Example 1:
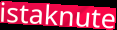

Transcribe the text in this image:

istaknute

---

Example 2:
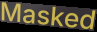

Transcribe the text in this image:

Masked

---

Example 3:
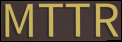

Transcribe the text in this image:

MTTR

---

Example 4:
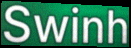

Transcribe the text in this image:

Swinh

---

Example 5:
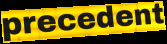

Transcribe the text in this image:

precedent